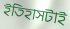
ইতিহাসটাই